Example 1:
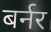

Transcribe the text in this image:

बर्नर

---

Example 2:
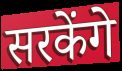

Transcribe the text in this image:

सरकेंगे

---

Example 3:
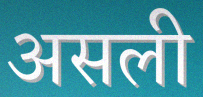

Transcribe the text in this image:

असली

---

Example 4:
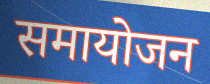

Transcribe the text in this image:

समायोजन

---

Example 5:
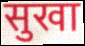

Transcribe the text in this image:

सुखा